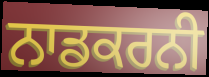
ਨਾਡਕਰਨੀ